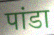
पांडा